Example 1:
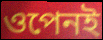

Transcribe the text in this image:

ওপেনই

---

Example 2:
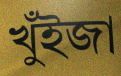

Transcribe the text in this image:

খুঁইজা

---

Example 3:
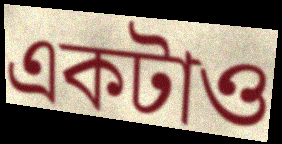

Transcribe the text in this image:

একটাও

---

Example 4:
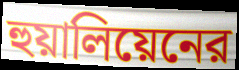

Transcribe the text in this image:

হুয়ালিয়েনের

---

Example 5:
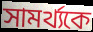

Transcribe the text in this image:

সামর্থ্যকে